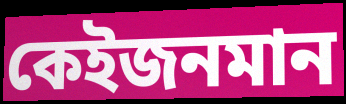
কেইজনমান